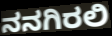
ನನಗಿರಲಿ